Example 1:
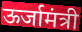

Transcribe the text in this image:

ऊर्जामंत्री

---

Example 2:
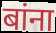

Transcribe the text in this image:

बांना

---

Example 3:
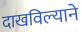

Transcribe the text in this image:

दाखविल्याने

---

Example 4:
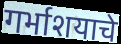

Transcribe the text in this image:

गर्भाशयाचे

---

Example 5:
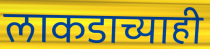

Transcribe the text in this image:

लाकडाच्याही